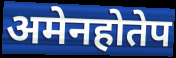
अमेनहोतेप